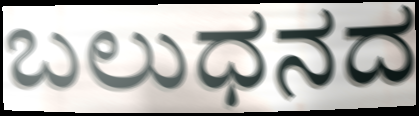
ಬಲುಧನದ